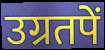
उग्रतपें